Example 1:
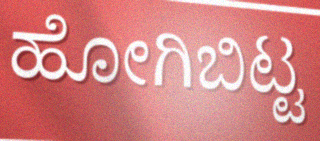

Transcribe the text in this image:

ಹೋಗಿಬಿಟ್ಟ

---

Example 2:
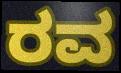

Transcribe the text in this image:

ರವ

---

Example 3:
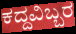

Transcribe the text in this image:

ಕದ್ದವಿಬ್ಬರ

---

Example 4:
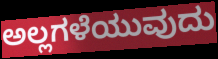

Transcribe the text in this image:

ಅಲ್ಲಗಳೆಯುವುದು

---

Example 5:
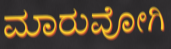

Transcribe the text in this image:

ಮಾರುವೋಗಿ